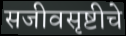
सजीवसृष्टीचे